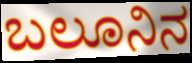
ಬಲೂನಿನ